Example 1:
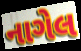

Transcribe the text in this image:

નાગેલ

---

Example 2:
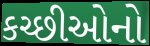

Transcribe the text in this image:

કચ્છીઓનો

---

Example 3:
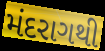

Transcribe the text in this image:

મંદરાગથી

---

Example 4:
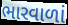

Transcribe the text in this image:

ભારવાળાં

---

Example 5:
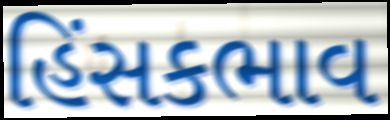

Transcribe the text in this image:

હિંસકભાવ